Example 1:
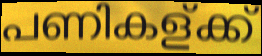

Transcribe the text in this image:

പണികള്ക്ക്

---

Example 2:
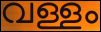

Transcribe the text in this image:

വള്ളം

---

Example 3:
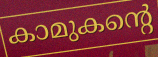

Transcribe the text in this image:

കാമുകന്റെ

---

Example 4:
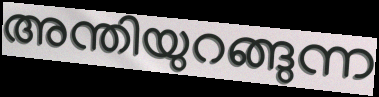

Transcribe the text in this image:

അന്തിയുറങ്ങുന്ന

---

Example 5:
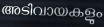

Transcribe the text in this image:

അടിവായകളും